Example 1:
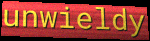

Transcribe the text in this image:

unwieldy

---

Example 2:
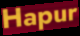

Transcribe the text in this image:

Hapur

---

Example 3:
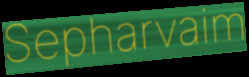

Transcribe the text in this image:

Sepharvaim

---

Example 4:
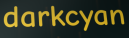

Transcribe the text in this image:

darkcyan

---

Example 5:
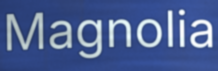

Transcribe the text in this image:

Magnolia